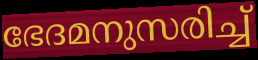
ഭേദമനുസരിച്ച്